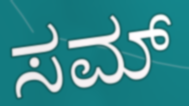
ಸಮ್